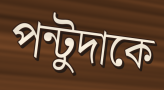
পন্টুদাকে